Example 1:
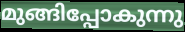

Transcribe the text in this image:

മുങ്ങിപ്പോകുന്നു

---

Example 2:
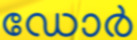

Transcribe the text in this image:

ഡോർ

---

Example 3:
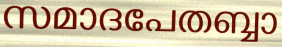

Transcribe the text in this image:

സമാദപേതബ്ബാ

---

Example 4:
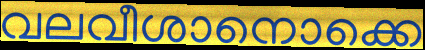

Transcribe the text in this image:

വലവീശാനൊക്കെ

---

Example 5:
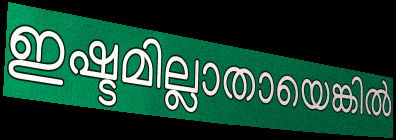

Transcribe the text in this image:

ഇഷ്ടമില്ലാതായെങ്കിൽ